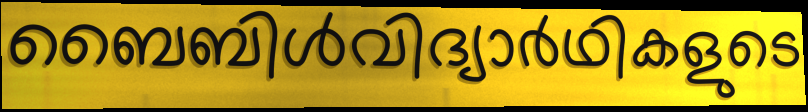
ബൈബിൾവിദ്യാർഥികളുടെ